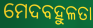
ମେଦବହୁଳତା